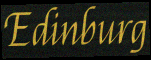
Edinburg